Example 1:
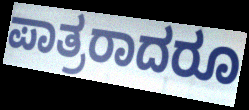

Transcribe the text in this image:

ಪಾತ್ರರಾದರೂ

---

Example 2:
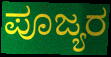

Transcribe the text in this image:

ಪೂಜ್ಯರ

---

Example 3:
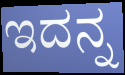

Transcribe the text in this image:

ಇದನ್ನ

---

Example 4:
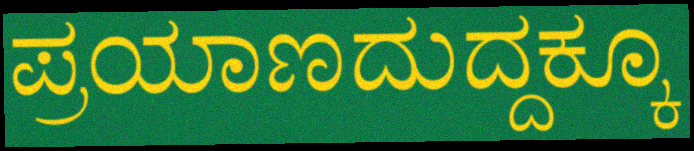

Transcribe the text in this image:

ಪ್ರಯಾಣದುದ್ದಕ್ಕೂ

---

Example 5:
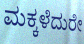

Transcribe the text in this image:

ಮಕ್ಕಳೆದುರೇ